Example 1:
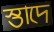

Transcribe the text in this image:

স্তাদে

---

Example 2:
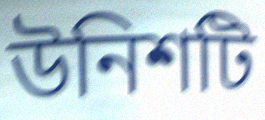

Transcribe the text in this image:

উনিশটি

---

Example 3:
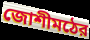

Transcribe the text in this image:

জোশীমঠের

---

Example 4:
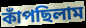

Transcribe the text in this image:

কাঁপছিলাম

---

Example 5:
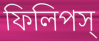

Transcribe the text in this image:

ফিলিপস্